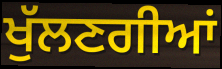
ਖੁੱਲਣਗੀਆਂ